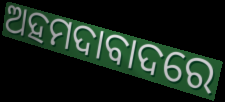
ଅହମଦାବାଦରେ